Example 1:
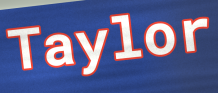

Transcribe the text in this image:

Taylor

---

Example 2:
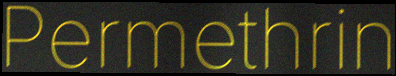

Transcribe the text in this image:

Permethrin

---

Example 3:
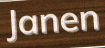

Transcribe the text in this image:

Janen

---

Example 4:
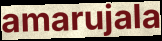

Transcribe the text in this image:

amarujala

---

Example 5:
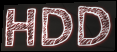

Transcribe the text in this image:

HDD